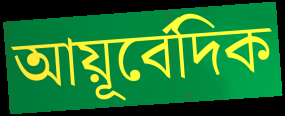
আয়ূর্বেদিক